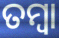
ତମ୍ୱା